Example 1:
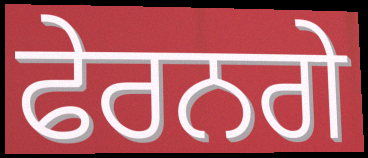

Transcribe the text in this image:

ਫੇਰਨਗੇ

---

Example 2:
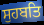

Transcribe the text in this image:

ਸੁਹਬਤਿ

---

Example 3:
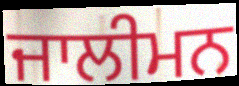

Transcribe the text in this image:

ਜਾਲੀਮਨ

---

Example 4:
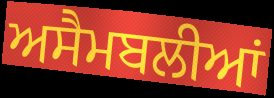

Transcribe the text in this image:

ਅਸੈਮਬਲੀਆਂ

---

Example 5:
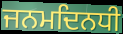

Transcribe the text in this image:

ਜਨਮਦਿਨਧੀ